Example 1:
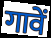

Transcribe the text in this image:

गावें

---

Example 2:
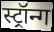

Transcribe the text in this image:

स्ट्रॉन्ग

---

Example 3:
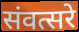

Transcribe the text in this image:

संवत्सरे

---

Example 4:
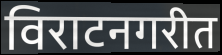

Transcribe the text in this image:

विराटनगरीत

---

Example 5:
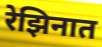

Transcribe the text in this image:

रेझिनात